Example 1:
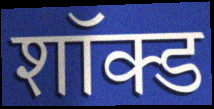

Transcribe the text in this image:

शॉक्ड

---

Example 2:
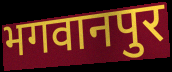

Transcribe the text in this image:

भगवानपुर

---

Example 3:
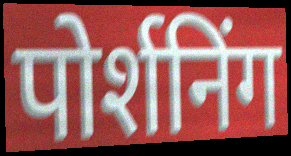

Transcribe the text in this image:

पोर्शनिंग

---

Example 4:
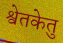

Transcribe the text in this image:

श्वेतकेतु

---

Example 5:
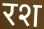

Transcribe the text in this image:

रश